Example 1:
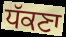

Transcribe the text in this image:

ਧੱਕਣਾ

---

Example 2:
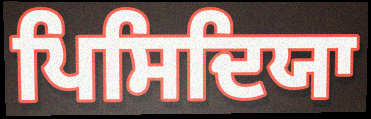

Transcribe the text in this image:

ਪਿਸਿਦਿਯਾ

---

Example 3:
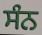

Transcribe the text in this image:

ਸੰਨ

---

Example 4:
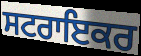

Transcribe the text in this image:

ਸਟਰਾਇਕਰ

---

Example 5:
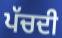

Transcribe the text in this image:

ਪੱਚਦੀ